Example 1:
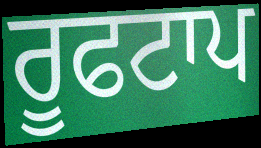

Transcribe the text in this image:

ਰੂਫਟਾਪ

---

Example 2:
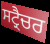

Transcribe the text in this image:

ਸਟ੍ਰੈਚਰ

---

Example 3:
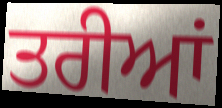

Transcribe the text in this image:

ਤਰੀਆਂ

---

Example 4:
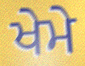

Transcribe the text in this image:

ਖੇਮੇ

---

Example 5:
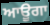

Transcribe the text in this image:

ਆਊਗਾ